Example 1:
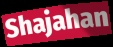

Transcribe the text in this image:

Shajahan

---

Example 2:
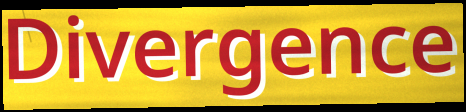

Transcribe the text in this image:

Divergence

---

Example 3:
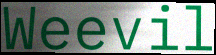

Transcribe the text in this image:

Weevil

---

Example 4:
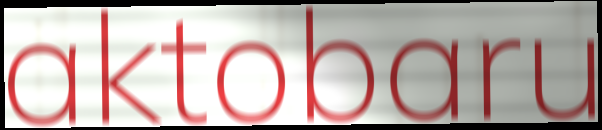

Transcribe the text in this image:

aktobaru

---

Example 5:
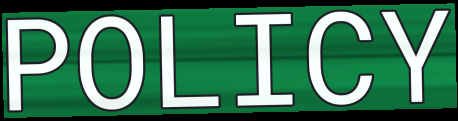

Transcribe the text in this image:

POLICY